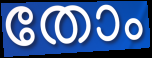
തോം